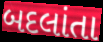
બદલાંતા